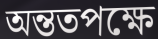
অন্ততপক্ষে